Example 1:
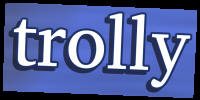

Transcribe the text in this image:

trolly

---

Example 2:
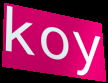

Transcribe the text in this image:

koy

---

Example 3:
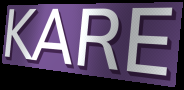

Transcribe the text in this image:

KARE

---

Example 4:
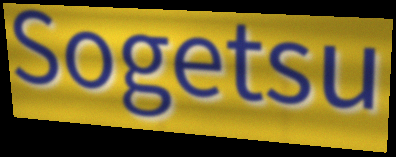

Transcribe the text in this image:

Sogetsu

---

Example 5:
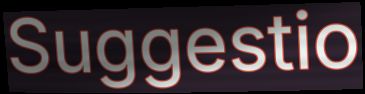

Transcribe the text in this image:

Suggestio